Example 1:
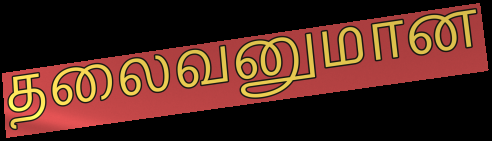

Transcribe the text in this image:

தலைவனுமான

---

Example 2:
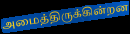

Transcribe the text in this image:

அமைத்திருக்கின்றன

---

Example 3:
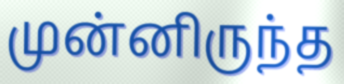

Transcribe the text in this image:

முன்னிருந்த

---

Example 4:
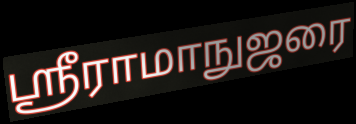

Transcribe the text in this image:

ஸ்ரீராமாநுஜரை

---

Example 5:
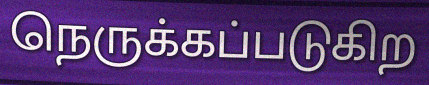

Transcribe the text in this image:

நெருக்கப்படுகிற